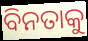
ବିନତାକୁ